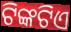
ଟିଙ୍କଟିଏ